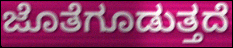
ಜೊತೆಗೂಡುತ್ತದೆ